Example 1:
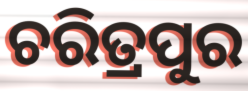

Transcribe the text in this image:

ଚରିତ୍ରପୁର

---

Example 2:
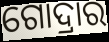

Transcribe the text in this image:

ଗୋଦ୍ରାର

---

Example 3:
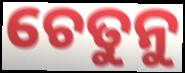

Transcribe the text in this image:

ଚେତୁନୁ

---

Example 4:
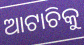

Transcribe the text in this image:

ଆଟାଚିକୁ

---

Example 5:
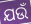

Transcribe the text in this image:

ଯଉଁ